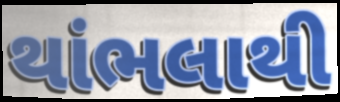
થાંભલાથી